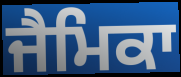
ਜੈਮਿਕਾ